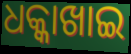
ଧକ୍କାଖାଇ